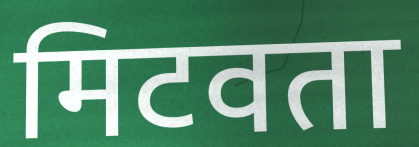
मिटवता